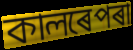
কালৰেপৰা